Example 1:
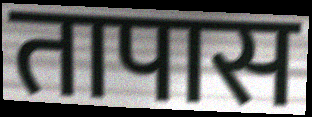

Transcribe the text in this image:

तापास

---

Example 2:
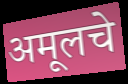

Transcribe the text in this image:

अमूलचे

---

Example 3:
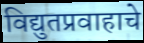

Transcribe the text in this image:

विद्युतप्रवाहाचे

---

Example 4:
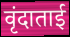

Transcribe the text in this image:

वृंदाताई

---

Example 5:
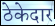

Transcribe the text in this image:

ठेकेदार